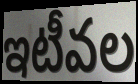
ఇటీవల